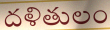
దళితులం